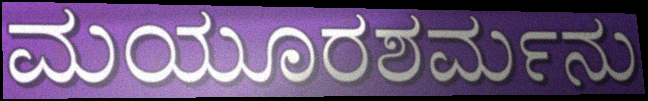
ಮಯೂರಶರ್ಮನು